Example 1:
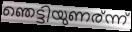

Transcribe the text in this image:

ഞെട്ടിയുണര്ന്ന്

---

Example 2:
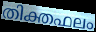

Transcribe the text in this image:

തിക്തഫലം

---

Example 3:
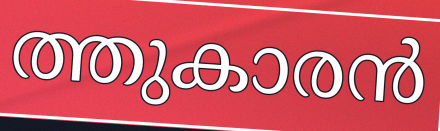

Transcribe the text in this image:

ത്തുകാരൻ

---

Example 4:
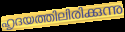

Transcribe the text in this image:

ഹൃദയത്തിലിരിക്കുന്നു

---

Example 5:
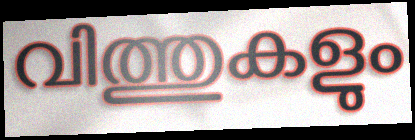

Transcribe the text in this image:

വിത്തുകളും